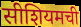
सीशियमची